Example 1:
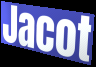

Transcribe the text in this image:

Jacot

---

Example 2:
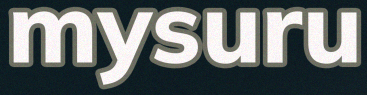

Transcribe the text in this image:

mysuru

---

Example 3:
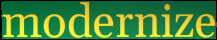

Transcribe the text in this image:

modernize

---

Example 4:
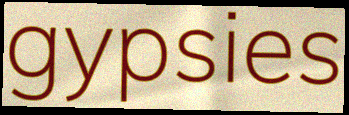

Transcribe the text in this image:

gypsies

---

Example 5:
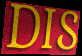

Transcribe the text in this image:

DIS